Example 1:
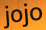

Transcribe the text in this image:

jojo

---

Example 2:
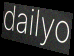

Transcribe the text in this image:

dailyo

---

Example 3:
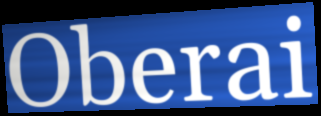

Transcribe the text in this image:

Oberai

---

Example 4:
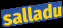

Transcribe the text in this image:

salladu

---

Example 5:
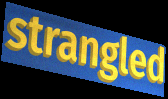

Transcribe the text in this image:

strangled